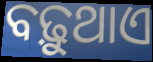
ବଢ଼ୁଥାଏ